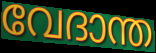
വേദാന്ത